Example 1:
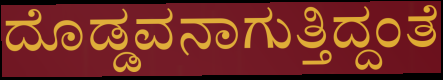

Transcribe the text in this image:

ದೊಡ್ಡವನಾಗುತ್ತಿದ್ದಂತೆ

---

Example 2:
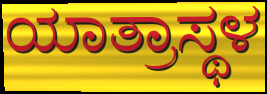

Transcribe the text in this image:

ಯಾತ್ರಾಸ್ಥಳ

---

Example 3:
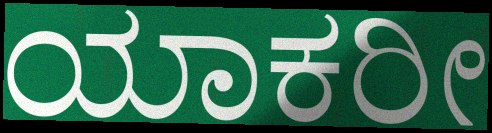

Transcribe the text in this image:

ಯಾಕರೀ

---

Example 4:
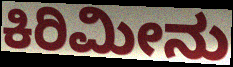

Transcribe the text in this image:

ಕಿರಿಮೀನು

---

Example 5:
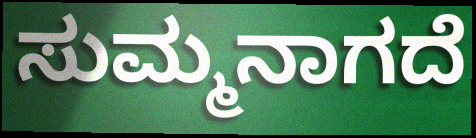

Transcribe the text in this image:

ಸುಮ್ಮನಾಗದೆ